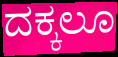
ದಕ್ಕಲೂ